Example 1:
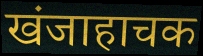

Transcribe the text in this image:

खंजाहाचक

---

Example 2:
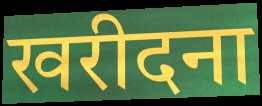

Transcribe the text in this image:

खरीदना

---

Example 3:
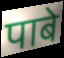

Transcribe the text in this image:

पाबे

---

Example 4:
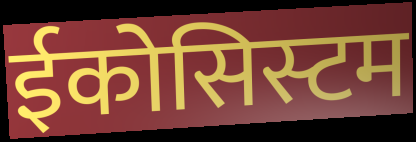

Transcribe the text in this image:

ईकोसिस्‍टम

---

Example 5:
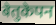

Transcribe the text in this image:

बेतुकेपन